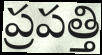
ప్రపత్తి